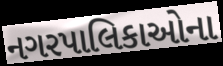
નગરપાલિકાઓના